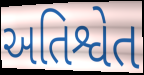
અતિશ્વેત